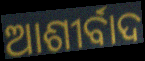
ଆଶୀର୍ବାଦ